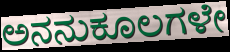
ಅನನುಕೂಲಗಳೇ